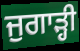
ਜੁਗਾੜ੍ਹੀ